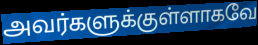
அவர்களுக்குள்ளாகவே